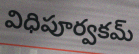
విధిపూర్వకమ్